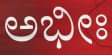
ಅಭೀಃ